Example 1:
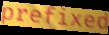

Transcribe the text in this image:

prefixed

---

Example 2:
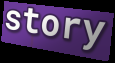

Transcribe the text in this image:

story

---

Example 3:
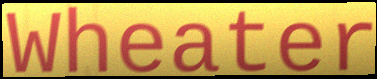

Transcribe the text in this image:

Wheater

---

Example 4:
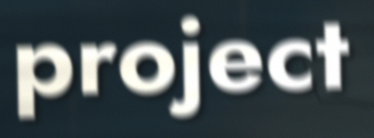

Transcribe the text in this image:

project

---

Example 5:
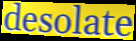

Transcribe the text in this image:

desolate